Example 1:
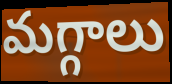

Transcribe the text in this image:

మగ్గాలు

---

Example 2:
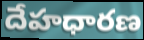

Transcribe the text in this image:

దేహధారణ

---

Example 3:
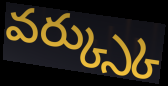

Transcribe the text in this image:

వర్క్స్కు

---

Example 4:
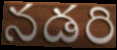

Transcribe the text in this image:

నడరి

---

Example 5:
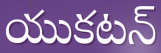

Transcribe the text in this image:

యుకటన్